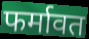
फर्मावत